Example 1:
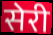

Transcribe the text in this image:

सेरी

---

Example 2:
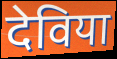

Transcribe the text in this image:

देविया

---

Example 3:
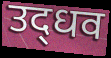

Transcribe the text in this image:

उद्धव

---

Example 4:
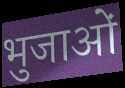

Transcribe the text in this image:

भुजाओं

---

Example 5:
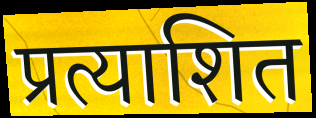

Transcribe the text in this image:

प्रत्याशित